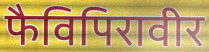
फैविपिरावीर